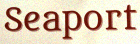
Seaport